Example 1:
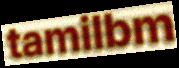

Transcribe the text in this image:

tamilbm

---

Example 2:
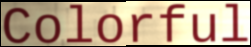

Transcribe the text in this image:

Colorful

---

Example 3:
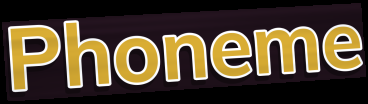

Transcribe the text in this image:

Phoneme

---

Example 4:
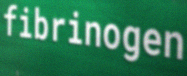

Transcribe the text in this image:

fibrinogen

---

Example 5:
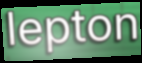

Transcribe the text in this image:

lepton